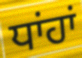
ਧਾਂਹਾਂ